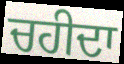
ਚਹੀਦਾ